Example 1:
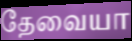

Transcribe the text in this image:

தேவையா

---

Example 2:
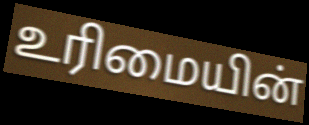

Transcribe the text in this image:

உரிமையின்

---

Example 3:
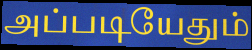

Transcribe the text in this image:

அப்படியேதும்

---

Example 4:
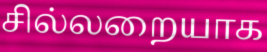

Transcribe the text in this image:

சில்லறையாக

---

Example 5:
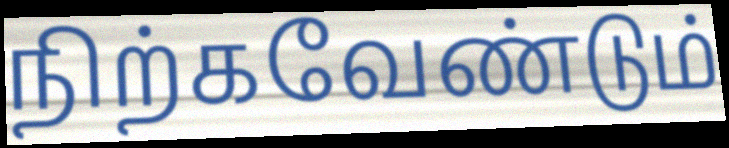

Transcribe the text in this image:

நிற்கவேண்டும்